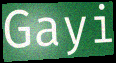
Gayi